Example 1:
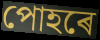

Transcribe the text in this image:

পোহৰে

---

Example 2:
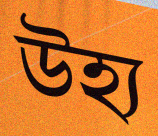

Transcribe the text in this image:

উহ্য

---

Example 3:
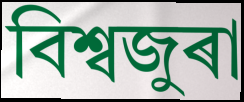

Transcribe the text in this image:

বিশ্বজুৰা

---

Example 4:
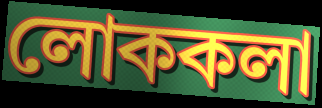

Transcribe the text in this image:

লোককলা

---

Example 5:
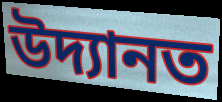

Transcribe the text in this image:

উদ্যানত